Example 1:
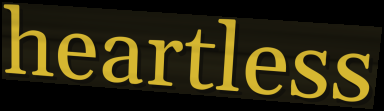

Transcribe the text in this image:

heartless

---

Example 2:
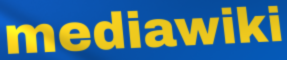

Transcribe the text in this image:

mediawiki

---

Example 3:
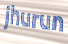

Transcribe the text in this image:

jhurun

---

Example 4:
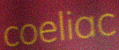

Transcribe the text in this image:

coeliac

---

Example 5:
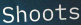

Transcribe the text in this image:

Shoots